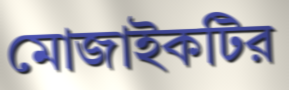
মোজাইকটির